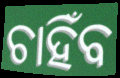
ଚାହିଁବ